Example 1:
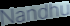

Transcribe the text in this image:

Nandhu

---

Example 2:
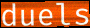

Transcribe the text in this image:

duels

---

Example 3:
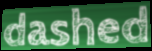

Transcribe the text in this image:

dashed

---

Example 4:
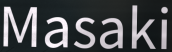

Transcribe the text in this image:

Masaki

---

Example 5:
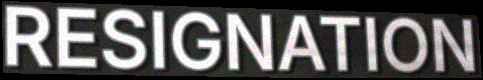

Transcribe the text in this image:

RESIGNATION